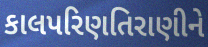
કાલપરિણતિરાણીને